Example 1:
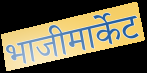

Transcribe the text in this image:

भाजीमार्केट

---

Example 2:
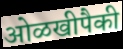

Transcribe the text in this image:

ओळखीपैकी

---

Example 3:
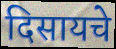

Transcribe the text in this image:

दिसायचे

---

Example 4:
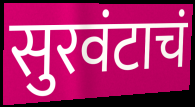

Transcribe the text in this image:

सुरवंटाचं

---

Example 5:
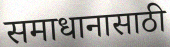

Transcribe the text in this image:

समाधानासाठी